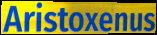
Aristoxenus